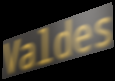
Valdes